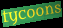
tycoons